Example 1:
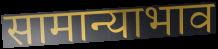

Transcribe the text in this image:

सामान्याभाव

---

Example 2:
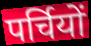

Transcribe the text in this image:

पर्चियों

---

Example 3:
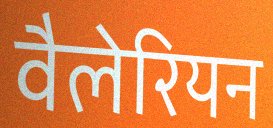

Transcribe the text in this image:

वैलेरियन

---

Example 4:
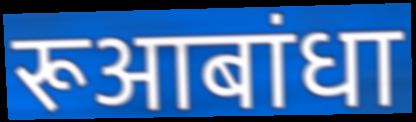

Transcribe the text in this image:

रूआबांधा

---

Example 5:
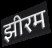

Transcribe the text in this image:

झीरम